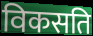
विकसति